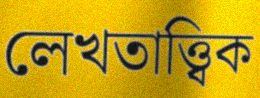
লেখতাত্ত্বিক